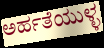
ಅರ್ಹತೆಯುಳ್ಳ